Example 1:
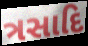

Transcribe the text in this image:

ત્રસાદિ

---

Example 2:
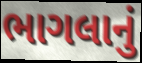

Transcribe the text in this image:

ભાગલાનું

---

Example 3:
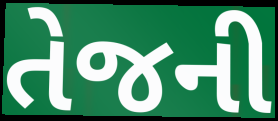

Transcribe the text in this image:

તેજની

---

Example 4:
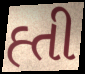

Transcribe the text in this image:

હ્તી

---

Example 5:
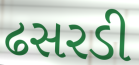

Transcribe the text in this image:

ઢસરડી